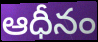
ఆధీనం